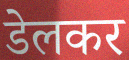
डेलकर